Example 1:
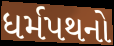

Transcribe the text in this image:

ધર્મપથનો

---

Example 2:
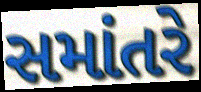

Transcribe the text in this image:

સમાંતરે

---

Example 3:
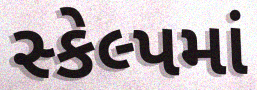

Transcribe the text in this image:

સ્કેલ્પમાં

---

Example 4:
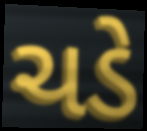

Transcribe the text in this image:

ચડે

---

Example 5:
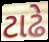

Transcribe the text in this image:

ટાઢે